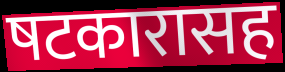
षटकारासह